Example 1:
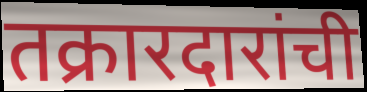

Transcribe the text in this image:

तक्रारदारांची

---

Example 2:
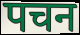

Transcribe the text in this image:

पचन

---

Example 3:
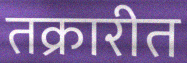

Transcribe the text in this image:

तक्रारीत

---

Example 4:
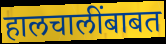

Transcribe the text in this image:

हालचालींबाबत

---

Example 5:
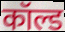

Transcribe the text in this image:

कॉल्ड